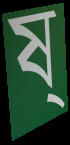
ষ্